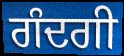
ਗੰਦਗੀ